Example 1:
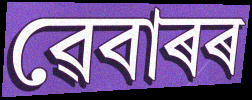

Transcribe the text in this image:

ৱেবাৰৰ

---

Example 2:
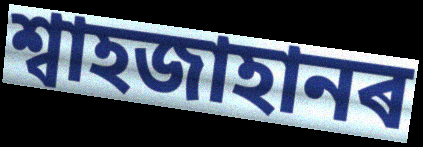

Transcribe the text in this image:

শ্বাহজাহানৰ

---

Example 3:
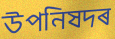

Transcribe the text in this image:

উপনিষদৰ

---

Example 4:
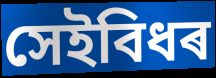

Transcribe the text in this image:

সেইবিধৰ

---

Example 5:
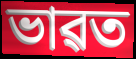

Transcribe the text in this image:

ভাৱত